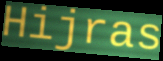
Hijras